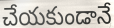
చేయకుండానే